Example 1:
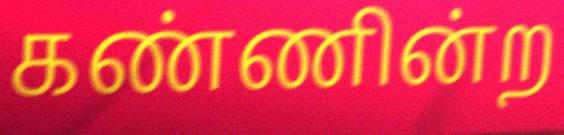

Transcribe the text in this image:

கண்ணின்ற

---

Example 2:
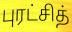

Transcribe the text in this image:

புரட்சித்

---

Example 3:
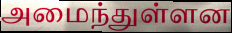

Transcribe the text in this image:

அமைந்துள்ளன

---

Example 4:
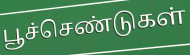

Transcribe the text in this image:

பூச்செண்டுகள்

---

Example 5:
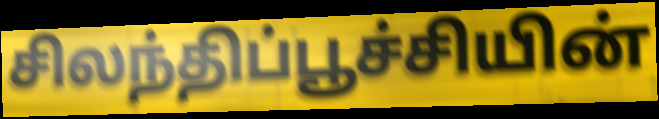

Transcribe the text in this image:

சிலந்திப்பூச்சியின்